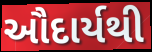
ઔદાર્યથી